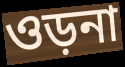
ওড়না